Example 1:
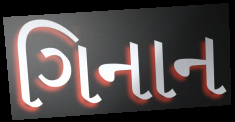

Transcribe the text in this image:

ગિનાન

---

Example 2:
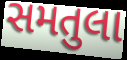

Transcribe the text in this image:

સમતુલા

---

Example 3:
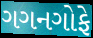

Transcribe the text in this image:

ગગનગોફે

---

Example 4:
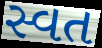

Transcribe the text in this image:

સ્વત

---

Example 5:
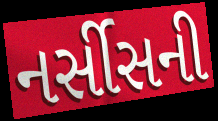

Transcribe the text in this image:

નર્સીસની